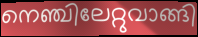
നെഞ്ചിലേറ്റുവാങ്ങി